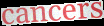
cancers